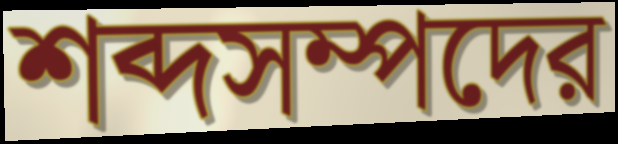
শব্দসম্পদের